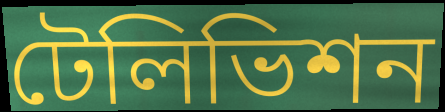
টেলিভিশন